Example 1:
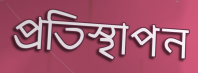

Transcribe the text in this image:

প্রতিস্থাপন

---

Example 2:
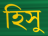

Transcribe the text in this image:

হিসু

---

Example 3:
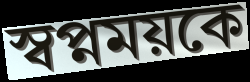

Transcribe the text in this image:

স্বপ্নময়কে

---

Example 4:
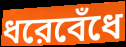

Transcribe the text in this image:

ধরেবেঁধে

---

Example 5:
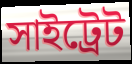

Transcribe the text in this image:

সাইট্রেট